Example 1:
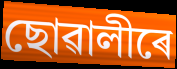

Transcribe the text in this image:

ছোৱালীৰে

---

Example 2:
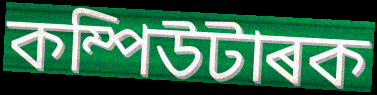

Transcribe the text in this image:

কম্পিউটাৰক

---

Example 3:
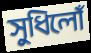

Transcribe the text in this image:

সুধিলোঁ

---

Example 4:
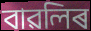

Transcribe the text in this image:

বাৱলিৰ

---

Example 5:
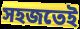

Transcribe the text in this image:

সহজতেই